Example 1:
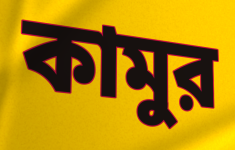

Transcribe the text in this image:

কামুর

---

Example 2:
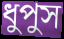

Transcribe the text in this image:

ধুপুস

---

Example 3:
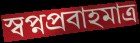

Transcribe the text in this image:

স্বপ্নপ্রবাহমাত্র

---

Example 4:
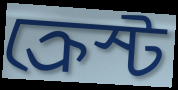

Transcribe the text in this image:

ক্রেস্ট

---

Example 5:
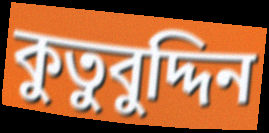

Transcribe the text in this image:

কুতুবুদ্দিন